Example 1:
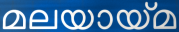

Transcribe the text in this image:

മലയായ്മ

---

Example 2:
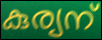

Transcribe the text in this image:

കുര്യന്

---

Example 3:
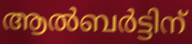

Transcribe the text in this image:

ആൽബർട്ടിന്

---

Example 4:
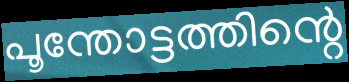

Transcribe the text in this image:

പൂന്തോട്ടത്തിന്റെ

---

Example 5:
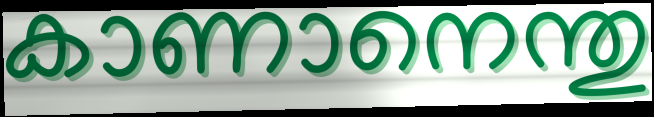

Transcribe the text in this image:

കാണാനെന്തു